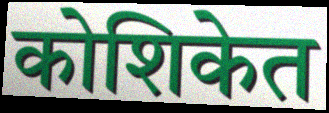
कोशिकेत